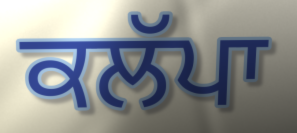
ਕਲੱਪਾ